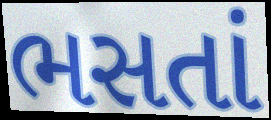
ભસતાં